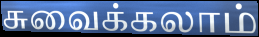
சுவைக்கலாம்